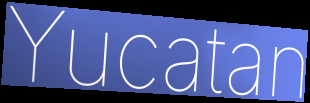
Yucatan